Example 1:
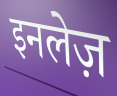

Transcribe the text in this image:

इनलेज़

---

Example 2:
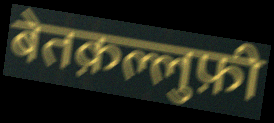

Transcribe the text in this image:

बेतक़ल्लुफ़ी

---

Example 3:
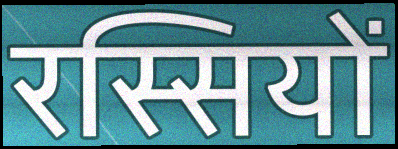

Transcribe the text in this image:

रस्सियों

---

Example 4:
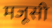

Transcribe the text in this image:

मजूसी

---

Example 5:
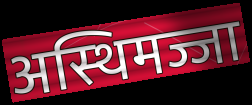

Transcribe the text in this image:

अस्थिमज्जा